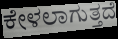
ಕೇಳಲಾಗುತ್ತದೆ